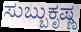
ಸುಬ್ಬುಕೃಷ್ಣ